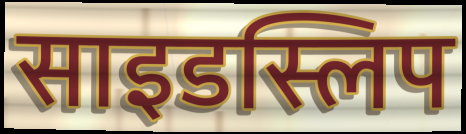
साइडस्लिप